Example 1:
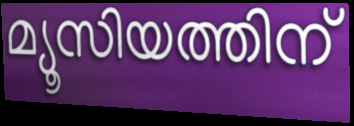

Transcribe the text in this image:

മ്യൂസിയത്തിന്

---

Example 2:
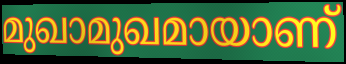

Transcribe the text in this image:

മുഖാമുഖമായാണ്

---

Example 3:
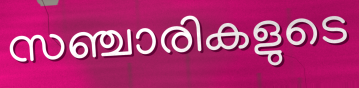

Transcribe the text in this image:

സഞ്ചാരികളുടെ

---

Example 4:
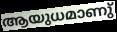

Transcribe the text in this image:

ആയുധമാണു്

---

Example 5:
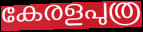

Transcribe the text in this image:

കേരളപുത്ര